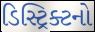
ડિસ્ટ્રિક્ટનો